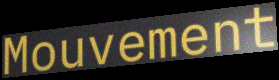
Mouvement